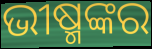
ଭୀଷ୍ମଙ୍କର